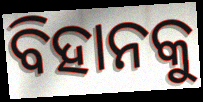
ବିହାନକୁ